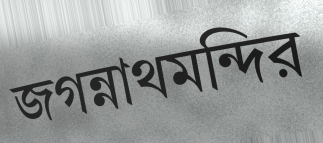
জগন্নাথমন্দির